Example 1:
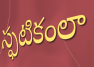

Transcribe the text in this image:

స్ఫటికంలా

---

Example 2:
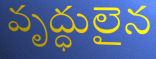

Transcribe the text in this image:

వృద్ధులైన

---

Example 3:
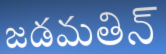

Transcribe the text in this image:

జడమతిన్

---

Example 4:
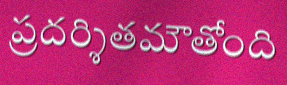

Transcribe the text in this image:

ప్రదర్శితమౌతోంది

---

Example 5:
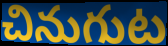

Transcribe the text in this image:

చినుగుట